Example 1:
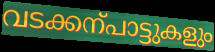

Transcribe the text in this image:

വടക്കന്പാട്ടുകളും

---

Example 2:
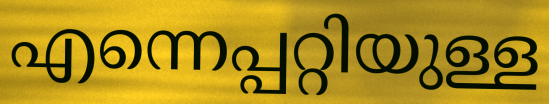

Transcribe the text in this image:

എന്നെപ്പറ്റിയുള്ള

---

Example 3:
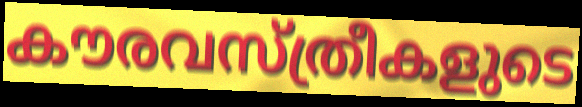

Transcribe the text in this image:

കൗരവസ്ത്രീകളുടെ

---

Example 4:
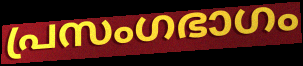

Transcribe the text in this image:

പ്രസംഗഭാഗം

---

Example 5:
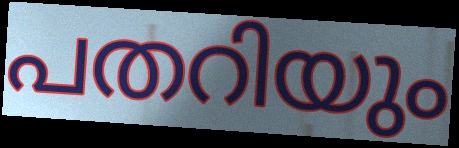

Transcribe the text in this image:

പതറിയും